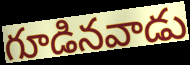
గూడినవాడు